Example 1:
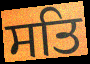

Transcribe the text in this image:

ਸਤਿ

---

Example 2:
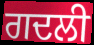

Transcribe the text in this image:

ਗਦਲੀ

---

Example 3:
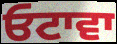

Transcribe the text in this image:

ਓਟਾਵਾ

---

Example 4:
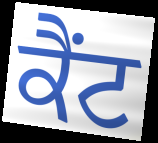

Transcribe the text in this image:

ਕੈਂਟ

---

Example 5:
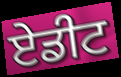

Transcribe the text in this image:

ਏਡੀਟ